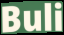
Buli